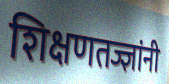
शिक्षणतज्ज्ञांनी